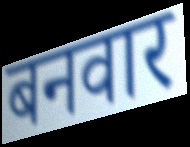
बनवार